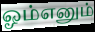
ஓம்எனும்